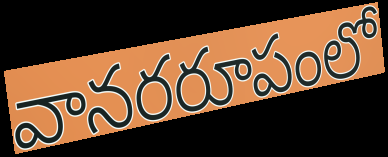
వానరరూపంలో